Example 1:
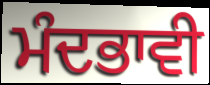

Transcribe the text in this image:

ਮੰਦਭਾਵੀ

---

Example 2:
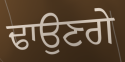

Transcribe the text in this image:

ਢਾਉਣਗੇ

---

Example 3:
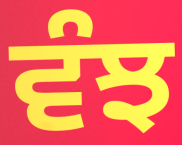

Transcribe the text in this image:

ਵੰਝ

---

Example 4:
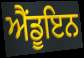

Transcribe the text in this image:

ਐਂਡੂਇਨ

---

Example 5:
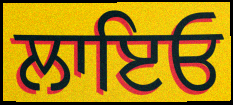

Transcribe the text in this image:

ਲਾਇਓ